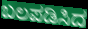
ಬಲಪಡಿಸಿದ